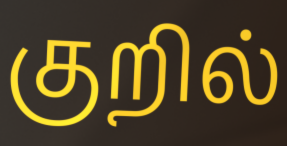
குறில்